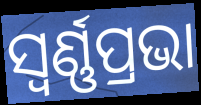
ସ୍ୱର୍ଣ୍ଣପ୍ରଭା